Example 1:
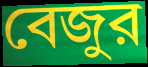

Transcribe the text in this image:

বেজুর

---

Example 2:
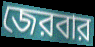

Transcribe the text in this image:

জেরবার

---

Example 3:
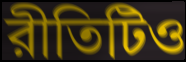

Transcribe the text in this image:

রীতিটিও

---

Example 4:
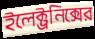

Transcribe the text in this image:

ইলেক্ট্রনিক্সের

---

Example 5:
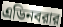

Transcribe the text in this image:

এডিনবরার